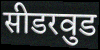
सीडरवुड